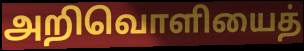
அறிவொளியைத்